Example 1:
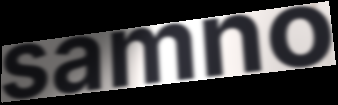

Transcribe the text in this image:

samno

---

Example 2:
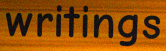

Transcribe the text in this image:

writings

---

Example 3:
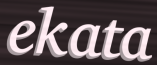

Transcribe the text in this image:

ekata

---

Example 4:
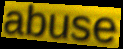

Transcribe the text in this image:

abuse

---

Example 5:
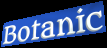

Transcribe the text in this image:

Botanic